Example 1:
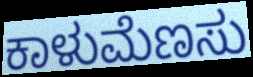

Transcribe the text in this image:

ಕಾಳುಮೆಣಸು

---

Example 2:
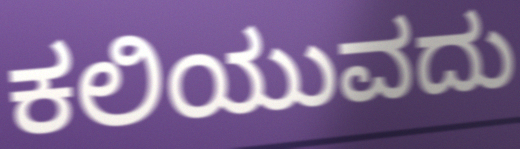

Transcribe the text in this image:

ಕಲಿಯುವದು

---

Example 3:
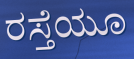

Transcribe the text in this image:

ರಸ್ತೆಯೂ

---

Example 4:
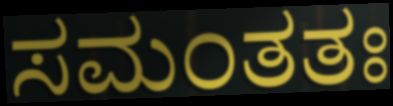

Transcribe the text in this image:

ಸಮಂತತಃ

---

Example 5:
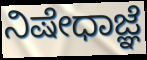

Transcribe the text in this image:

ನಿಷೇಧಾಜ್ಞೆ